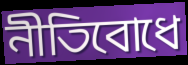
নীতিবোধে